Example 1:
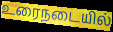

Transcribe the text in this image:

உரைநடையில்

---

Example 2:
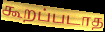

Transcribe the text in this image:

கூறப்படாத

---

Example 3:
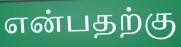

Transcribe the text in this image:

என்பதற்கு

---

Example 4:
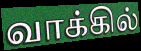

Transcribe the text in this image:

வாக்கில்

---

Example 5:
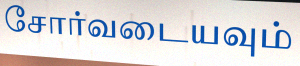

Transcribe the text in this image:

சோர்வடையவும்